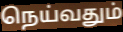
நெய்வதும்